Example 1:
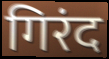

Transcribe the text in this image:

गिरंद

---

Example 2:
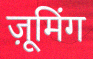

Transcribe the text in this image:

ज़ूमिंग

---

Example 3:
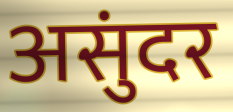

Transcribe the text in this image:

असुंदर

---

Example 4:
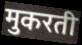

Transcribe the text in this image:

मुकरती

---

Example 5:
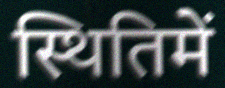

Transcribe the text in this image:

स्थितिमें